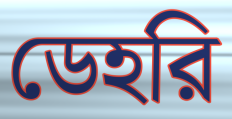
ডেহরি